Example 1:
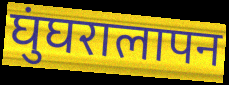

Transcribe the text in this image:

घुंघरालापन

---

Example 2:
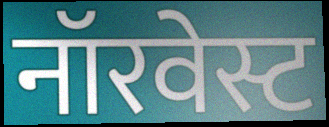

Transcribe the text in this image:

नॉरवेस्ट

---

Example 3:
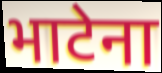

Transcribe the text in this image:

भाटेना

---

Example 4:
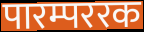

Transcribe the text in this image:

पारम्पररक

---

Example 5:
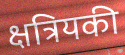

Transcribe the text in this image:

क्षत्रियकी